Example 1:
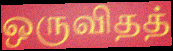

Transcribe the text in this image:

ஒருவிதத்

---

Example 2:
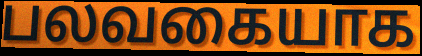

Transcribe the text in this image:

பலவகையாக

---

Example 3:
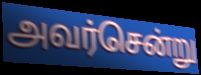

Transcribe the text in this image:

அவர்சென்று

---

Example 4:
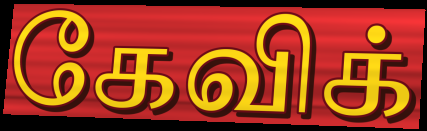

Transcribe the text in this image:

கேவிக்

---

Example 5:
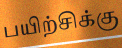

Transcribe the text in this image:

பயிற்சிக்கு